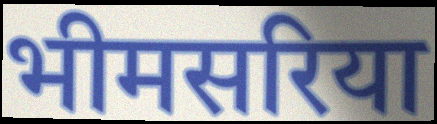
भीमसरिया